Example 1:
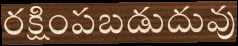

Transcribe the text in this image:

రక్షింపబడుదువు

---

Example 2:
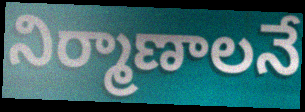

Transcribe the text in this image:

నిర్మాణాలనే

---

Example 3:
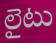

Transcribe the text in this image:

లైటు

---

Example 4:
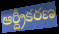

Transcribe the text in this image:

ఆర్ద్రీకరణ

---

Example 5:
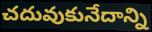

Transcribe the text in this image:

చదువుకునేదాన్ని